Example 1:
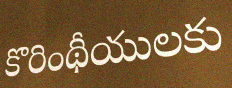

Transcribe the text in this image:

కొరింథీయులకు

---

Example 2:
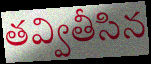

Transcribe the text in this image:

తవ్వితీసిన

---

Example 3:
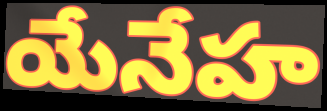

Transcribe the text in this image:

యేనేహ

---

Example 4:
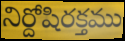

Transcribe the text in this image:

నిర్దోషిరక్తము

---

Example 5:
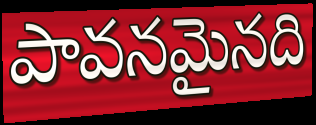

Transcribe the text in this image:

పావనమైనది